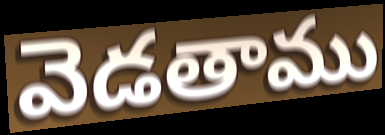
వెడతాము